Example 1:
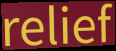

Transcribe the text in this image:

relief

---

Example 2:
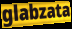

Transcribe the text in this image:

glabzata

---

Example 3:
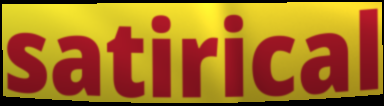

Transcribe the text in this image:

satirical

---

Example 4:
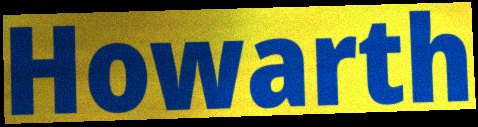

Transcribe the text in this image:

Howarth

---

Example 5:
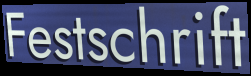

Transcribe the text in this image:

Festschrift